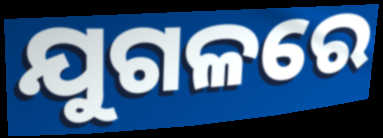
ଯୁଗଳରେ